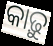
କାଢ଼ୁ